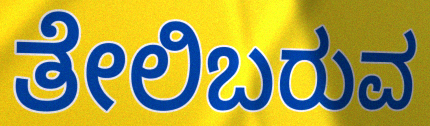
ತೇಲಿಬರುವ